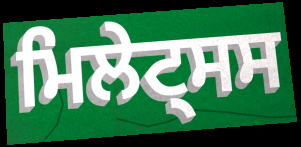
ਮਿਲੇਟ੍ਸਸ